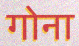
गोना